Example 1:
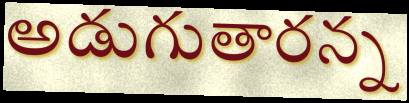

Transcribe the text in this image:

అడుగుతారన్న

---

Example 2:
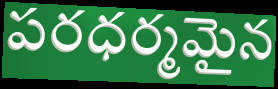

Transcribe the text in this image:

పరధర్మమైన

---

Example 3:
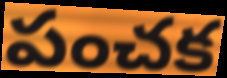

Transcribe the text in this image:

పంచక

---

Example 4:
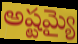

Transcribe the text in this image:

అష్టమ్యై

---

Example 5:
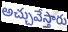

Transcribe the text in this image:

అచ్చువేస్తారు